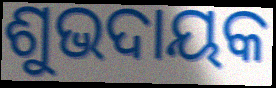
ଶୁଭଦାୟକ